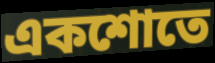
একশোতে